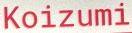
Koizumi